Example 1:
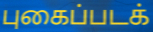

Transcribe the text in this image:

புகைப்படக்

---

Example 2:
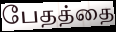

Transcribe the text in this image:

பேதத்தை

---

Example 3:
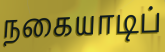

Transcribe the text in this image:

நகையாடிப்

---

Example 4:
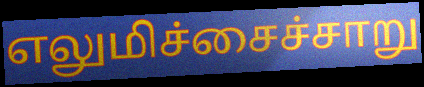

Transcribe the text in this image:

எலுமிச்சைச்சாறு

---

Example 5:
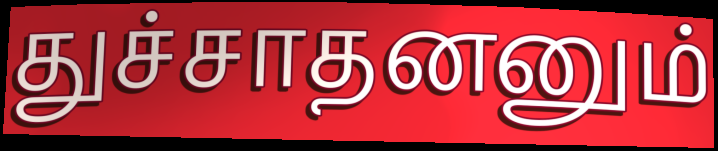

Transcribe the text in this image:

துச்சாதனனும்